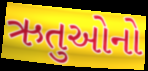
ઋતુઓનો